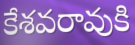
కేశవరావుకి